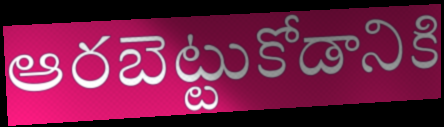
ఆరబెట్టుకోడానికి